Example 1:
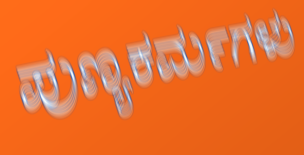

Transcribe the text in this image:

ಪುಣ್ಯಕರ್ಮಗಳು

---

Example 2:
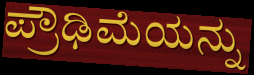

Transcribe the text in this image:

ಪ್ರೌಢಿಮೆಯನ್ನು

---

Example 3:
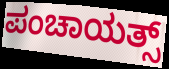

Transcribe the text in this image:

ಪಂಚಾಯತ್ಸ್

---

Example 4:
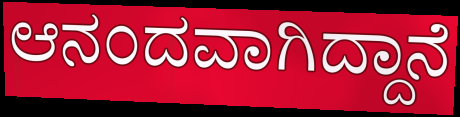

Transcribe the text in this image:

ಆನಂದವಾಗಿದ್ದಾನೆ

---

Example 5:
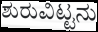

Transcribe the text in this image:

ಶುರುವಿಟ್ಟನು